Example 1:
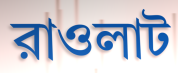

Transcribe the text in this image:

রাওলাট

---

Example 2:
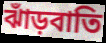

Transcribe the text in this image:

ঝাঁড়বাতি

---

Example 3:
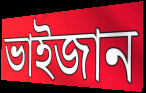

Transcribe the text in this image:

ভাইজান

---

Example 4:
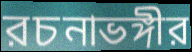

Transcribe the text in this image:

রচনাভঙ্গীর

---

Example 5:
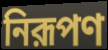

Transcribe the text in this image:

নিরূপণ